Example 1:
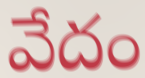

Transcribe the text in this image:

వేదం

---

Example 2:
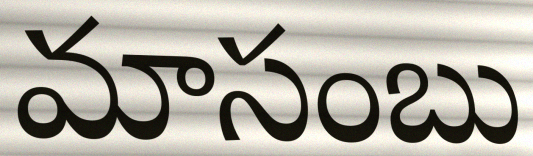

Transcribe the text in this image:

మాసంబు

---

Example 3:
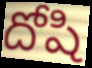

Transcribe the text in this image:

దోషి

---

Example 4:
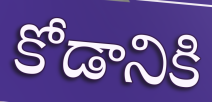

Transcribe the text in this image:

కోడానికి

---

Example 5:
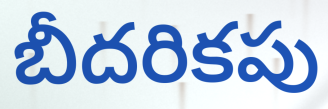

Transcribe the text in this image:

బీదరికపు